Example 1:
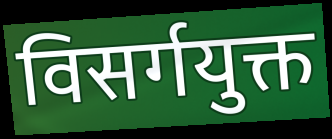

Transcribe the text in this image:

विसर्गयुक्त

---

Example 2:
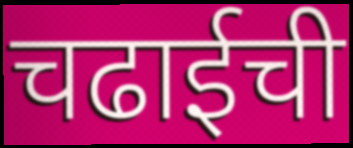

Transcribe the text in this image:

चढाईची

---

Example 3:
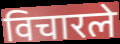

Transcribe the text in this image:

विचारले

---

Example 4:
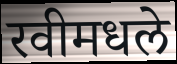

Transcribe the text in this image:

रवीमधले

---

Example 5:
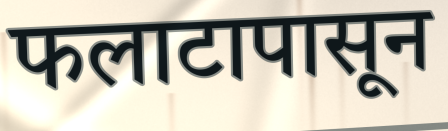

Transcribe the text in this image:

फलाटापासून